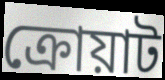
ক্রোয়াট